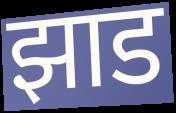
झाड